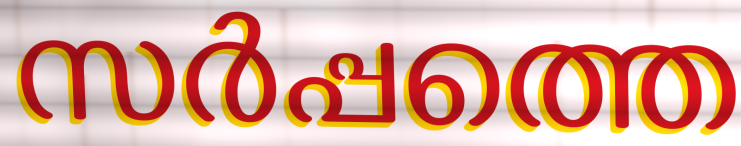
സർപ്പത്തെ